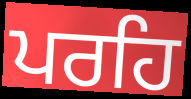
ਪਰਹਿ